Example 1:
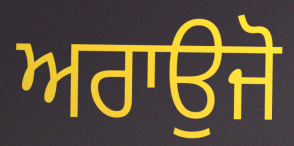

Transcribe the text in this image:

ਅਰਾਉਜੋ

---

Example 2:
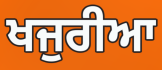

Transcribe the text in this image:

ਖਜੁਰੀਆ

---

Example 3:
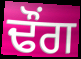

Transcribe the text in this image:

ਢੌਂਗ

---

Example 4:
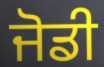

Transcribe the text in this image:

ਜੋਡੀ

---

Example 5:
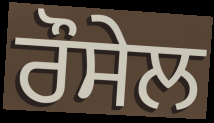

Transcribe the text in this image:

ਰੌਸੇਲ